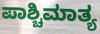
ಪಾಶ್ಚಿಮಾತ್ಯ